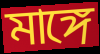
মাঙ্গে